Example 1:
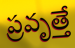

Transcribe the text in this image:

ప్రవృత్తే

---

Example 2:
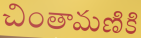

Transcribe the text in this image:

చింతామణికి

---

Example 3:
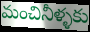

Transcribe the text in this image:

మంచినీళ్ళకు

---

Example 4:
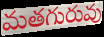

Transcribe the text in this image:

మతగురువు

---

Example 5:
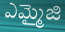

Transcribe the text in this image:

ఎమ్మైజి